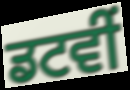
ਡਟਵੀਂ